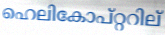
ഹെലികോപ്റ്ററില്